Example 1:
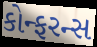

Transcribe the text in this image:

કોન્ફરન્સ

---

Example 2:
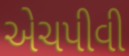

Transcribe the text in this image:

એચપીવી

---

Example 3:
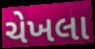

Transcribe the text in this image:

ચેખલા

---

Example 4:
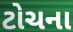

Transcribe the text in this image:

ટોચના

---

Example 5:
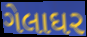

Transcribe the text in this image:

ગેલાઘર